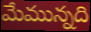
మేమున్నది